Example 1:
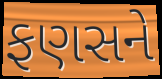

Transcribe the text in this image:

ફણસને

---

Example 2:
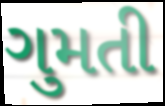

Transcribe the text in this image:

ગુમતી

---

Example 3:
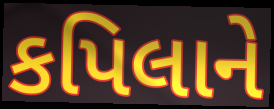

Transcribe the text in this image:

કપિલાને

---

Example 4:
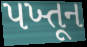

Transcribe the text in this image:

પખ્તૂન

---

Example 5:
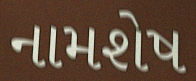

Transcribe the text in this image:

નામશેષ